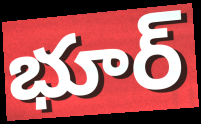
భూర్